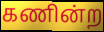
கணின்ற